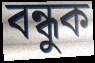
বন্ধুক